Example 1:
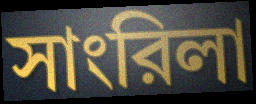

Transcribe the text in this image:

সাংরিলা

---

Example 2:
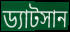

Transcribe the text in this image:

ড্যাটসান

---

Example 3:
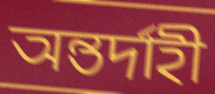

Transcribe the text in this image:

অন্তর্দাহী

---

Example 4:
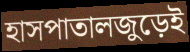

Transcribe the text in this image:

হাসপাতালজুড়েই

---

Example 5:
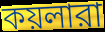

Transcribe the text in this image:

কয়লারা